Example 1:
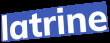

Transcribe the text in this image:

latrine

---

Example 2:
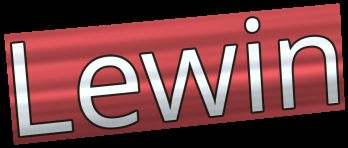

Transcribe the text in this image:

Lewin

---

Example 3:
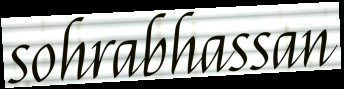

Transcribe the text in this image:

sohrabhassan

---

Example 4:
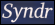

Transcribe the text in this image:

Syndr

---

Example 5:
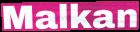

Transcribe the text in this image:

Malkan